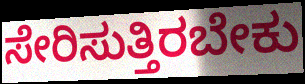
ಸೇರಿಸುತ್ತಿರಬೇಕು